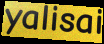
yalisai